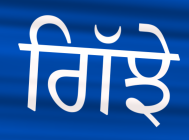
ਗਿੱਝੇ